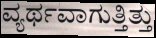
ವ್ಯರ್ಥವಾಗುತ್ತಿತ್ತು